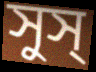
সুস্